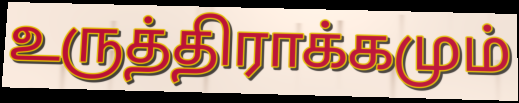
உருத்திராக்கமும்